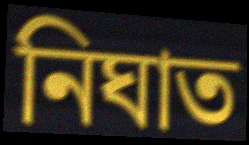
নিঘাত